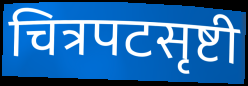
चित्रपटसृष्टी